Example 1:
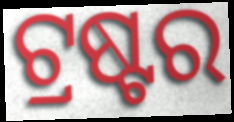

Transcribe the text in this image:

ଟ୍ରଷ୍ଟର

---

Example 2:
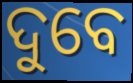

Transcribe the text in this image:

ଦୁବେ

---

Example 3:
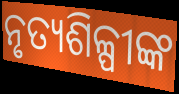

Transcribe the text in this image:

ନୃତ୍ୟଶିଳ୍ପୀଙ୍କ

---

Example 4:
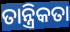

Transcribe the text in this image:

ତାନ୍ତ୍ରିକତା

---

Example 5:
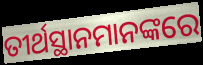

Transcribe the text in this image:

ତୀର୍ଥସ୍ଥାନମାନଙ୍କରେ